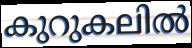
കുറുകലിൽ